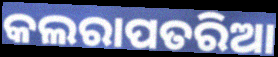
କଲରାପତରିଆ